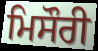
ਮਿਸੌਰੀ